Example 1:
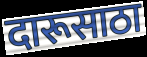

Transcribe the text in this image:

दारूसाठा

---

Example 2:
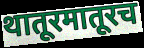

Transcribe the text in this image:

थातूरमातूरच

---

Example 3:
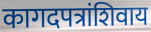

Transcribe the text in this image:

कागदपत्रांशिवाय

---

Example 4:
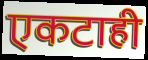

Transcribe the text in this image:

एकटाही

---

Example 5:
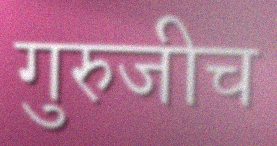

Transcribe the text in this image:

गुरुजीच